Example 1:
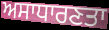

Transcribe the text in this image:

ਅਸਾਧਾਰਣਤਾ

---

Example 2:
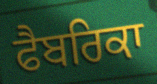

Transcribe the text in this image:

ਫੈਬਰਿਕਾ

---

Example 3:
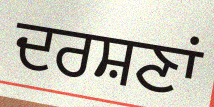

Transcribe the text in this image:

ਦਰਸ਼ਣਾਂ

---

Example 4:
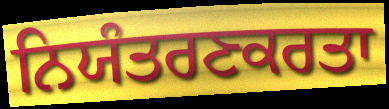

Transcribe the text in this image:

ਨਿਯੰਤਰਣਕਰਤਾ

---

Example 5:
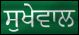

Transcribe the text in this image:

ਸੁਖੇਵਾਲ